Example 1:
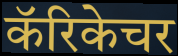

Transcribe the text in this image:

कॅरिकेचर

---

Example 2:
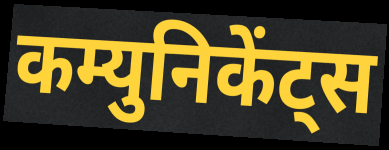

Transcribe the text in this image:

कम्युनिकेंट्स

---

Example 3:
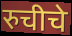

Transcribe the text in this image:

रुचीचे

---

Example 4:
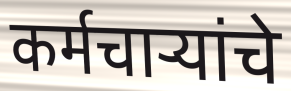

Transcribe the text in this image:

कर्मचाऱ्यांचे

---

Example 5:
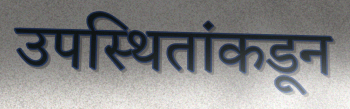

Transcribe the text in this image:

उपस्थितांकडून